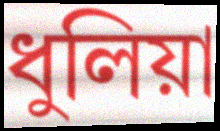
ধুলিয়া